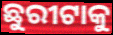
ଛୁରୀଟାକୁ